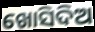
ଖୋସିଦିଅ